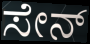
ಸೇನ್